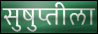
सुषुप्तीला